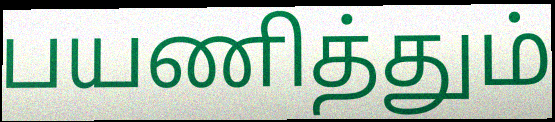
பயணித்தும்